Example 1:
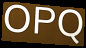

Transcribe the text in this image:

OPQ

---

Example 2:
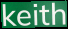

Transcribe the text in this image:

keith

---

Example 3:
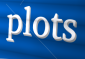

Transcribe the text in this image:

plots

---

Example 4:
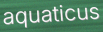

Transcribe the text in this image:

aquaticus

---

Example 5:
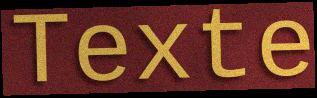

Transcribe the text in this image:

Texte